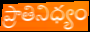
ప్రాతినిధ్యం